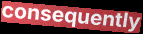
consequently